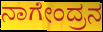
ನಾಗೇಂದ್ರನ